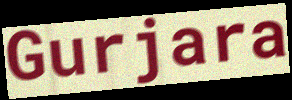
Gurjara